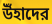
উঁহাদের